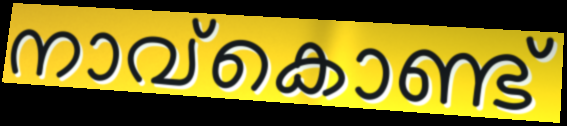
നാവ്കൊണ്ട്